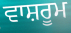
ਵਾਸ਼ਰੂਮ